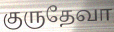
குருதேவா